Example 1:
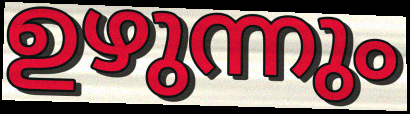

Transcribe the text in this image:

ഉഴുന്നും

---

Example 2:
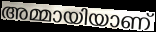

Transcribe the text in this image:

അമ്മായിയാണ്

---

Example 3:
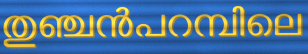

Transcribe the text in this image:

തുഞ്ചൻപറമ്പിലെ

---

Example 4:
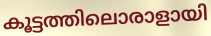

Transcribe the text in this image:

കൂട്ടത്തിലൊരാളായി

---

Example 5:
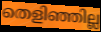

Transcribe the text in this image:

തെളിഞ്ഞില്ല